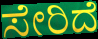
ಸೇರಿದೆ